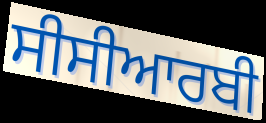
ਸੀਸੀਆਰਬੀ